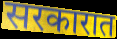
सरकारात